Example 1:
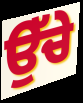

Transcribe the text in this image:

ਉੱਚੇ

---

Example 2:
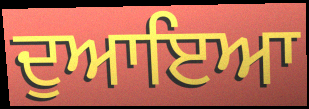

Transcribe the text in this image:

ਦੁਆਇਆ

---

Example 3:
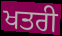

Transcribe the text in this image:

ਖਤਰੀ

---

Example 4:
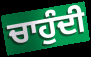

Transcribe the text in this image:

ਚਾਹੁੰਦੀ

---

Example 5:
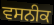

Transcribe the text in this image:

ਵਸਨੀਕ